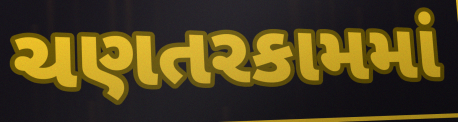
ચણતરકામમાં